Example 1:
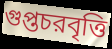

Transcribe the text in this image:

গুপ্তচরবৃত্তি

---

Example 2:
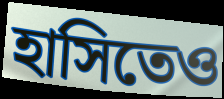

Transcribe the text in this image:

হাসিতেও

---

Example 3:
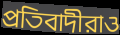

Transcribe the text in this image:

প্রতিবাদীরাও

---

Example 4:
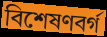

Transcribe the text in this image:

বিশেষণবর্গ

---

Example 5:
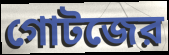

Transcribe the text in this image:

গোটজের